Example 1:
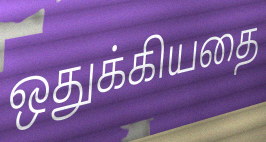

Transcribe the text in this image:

ஒதுக்கியதை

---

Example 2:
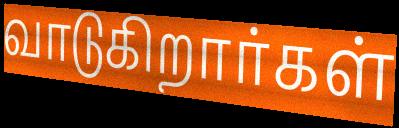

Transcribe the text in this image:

வாடுகிறார்கள்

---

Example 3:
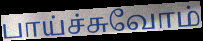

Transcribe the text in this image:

பாய்ச்சுவோம்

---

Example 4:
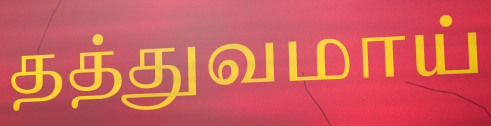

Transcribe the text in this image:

தத்துவமாய்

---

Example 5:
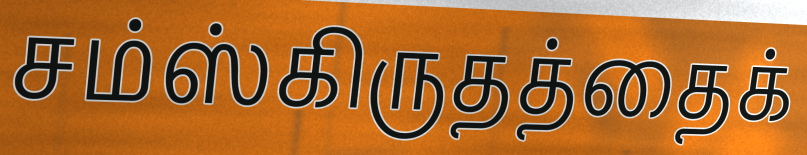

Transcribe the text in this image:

சம்ஸ்கிருதத்தைக்